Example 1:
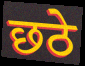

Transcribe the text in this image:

छठे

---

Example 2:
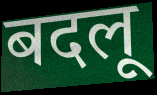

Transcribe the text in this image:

बदलू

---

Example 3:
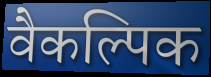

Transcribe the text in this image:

वैकल्पिक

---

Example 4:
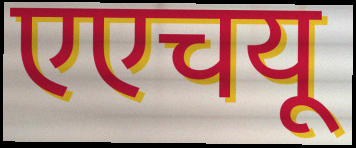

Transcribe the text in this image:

एएचयू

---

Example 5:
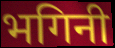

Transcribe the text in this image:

भगिनी